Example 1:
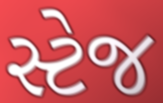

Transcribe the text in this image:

સ્ટેજ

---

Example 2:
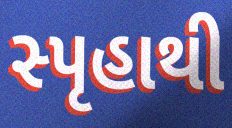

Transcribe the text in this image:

સ્પૃહાથી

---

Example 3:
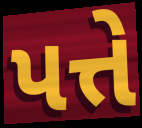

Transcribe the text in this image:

પત્તે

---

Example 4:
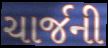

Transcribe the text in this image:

ચાર્જની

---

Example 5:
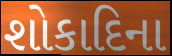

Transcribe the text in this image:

શોકાદિના